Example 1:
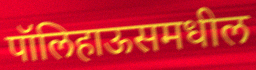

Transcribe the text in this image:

पॉलिहाऊसमधील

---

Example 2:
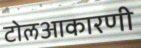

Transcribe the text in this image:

टोलआकारणी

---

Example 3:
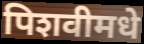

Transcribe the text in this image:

पिशवीमधे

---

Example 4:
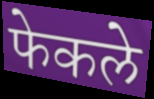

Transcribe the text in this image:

फेकले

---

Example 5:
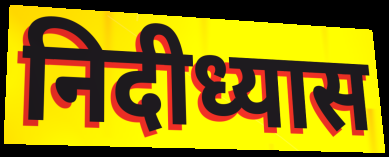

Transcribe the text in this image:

निदीध्यास